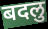
बदलु